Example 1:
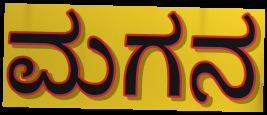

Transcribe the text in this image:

ಮಗನ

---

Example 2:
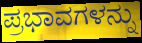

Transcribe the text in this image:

ಪ್ರಭಾವಗಳನ್ನು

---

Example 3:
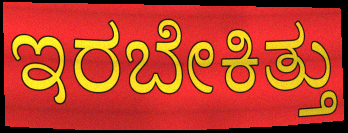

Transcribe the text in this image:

ಇರಬೇಕಿತ್ತು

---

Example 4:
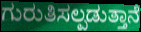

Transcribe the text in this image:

ಗುರುತಿಸಲ್ಪಡುತ್ತಾನೆ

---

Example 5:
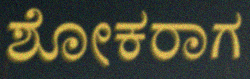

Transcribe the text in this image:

ಶೋಕರಾಗ